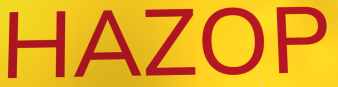
HAZOP